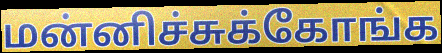
மன்னிச்சுக்கோங்க